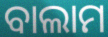
ବାଲାମ